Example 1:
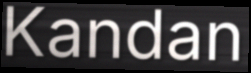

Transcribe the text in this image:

Kandan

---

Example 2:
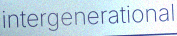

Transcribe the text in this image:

intergenerational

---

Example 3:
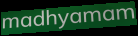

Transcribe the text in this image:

madhyamam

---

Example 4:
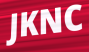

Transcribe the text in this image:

JKNC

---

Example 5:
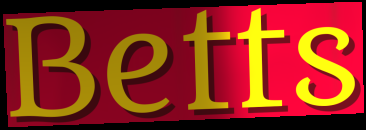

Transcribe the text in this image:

Betts